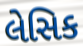
લેસિક